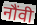
नौंवी